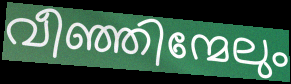
വീഞ്ഞിന്മേലും